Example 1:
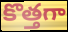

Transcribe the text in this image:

కొత్తగా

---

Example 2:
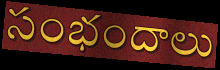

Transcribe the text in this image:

సంభందాలు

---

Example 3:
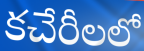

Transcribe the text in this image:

కచేరీలలో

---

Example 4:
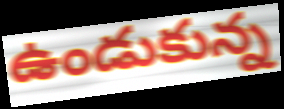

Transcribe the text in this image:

ఉండుకున్న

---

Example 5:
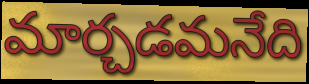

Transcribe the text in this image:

మార్చడమనేది